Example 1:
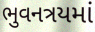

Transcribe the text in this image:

ભુવનત્રયમાં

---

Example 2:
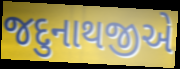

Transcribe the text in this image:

જદુનાથજીએ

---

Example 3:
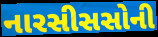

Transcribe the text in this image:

નારસીસસોની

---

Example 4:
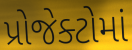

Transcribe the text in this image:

પ્રોજેક્ટોમાં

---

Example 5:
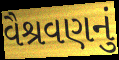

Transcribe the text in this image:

વૈશ્રવણનું